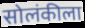
सोलंकीला